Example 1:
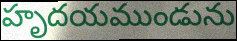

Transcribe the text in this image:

హృదయముండును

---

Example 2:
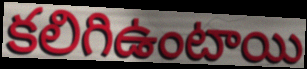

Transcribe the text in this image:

కలిగిఉంటాయి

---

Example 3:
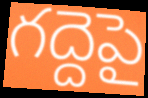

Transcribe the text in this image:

గద్దెపై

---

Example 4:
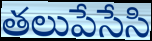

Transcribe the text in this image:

తలుపేసేసి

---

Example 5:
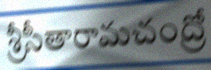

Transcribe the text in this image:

శ్రీసీతారామచంద్రో